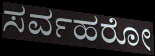
ಸರ್ವಹರೋ